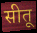
सीतू